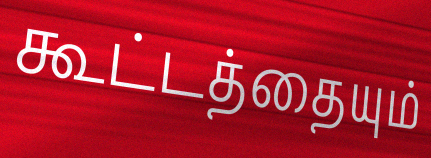
கூட்டத்தையும்